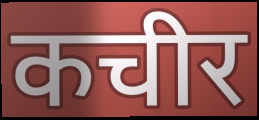
कचीर